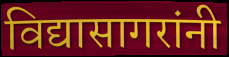
विद्यासागरांनी